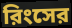
রিংসের